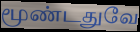
மூண்டதுவே